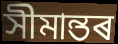
সীমান্তৰ